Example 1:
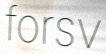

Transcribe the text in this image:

forsv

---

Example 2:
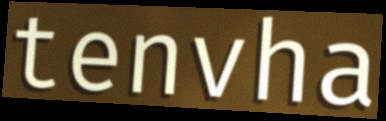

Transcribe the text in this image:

tenvha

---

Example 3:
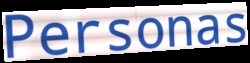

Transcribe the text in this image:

Personas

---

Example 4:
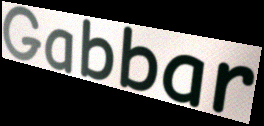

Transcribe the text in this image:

Gabbar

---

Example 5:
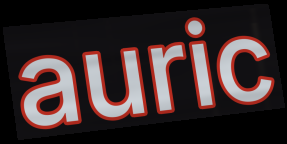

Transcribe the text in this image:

auric